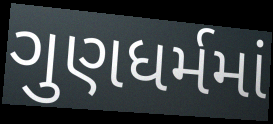
ગુણધર્મમાં